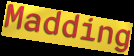
Madding